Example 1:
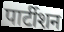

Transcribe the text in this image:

पार्टीशन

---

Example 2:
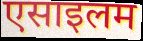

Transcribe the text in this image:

एसाइलम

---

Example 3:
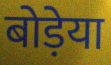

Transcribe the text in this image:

बोड़ेया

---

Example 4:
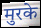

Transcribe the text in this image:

मुरके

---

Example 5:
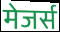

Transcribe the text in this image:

मेजर्स